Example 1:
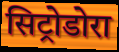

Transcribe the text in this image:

सिट्रोडोरा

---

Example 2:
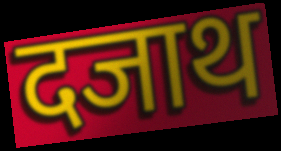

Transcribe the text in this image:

दजाथ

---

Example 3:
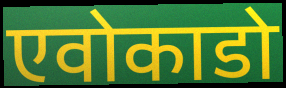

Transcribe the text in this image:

एवोकाडो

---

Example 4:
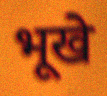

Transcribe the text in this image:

भूखे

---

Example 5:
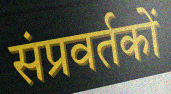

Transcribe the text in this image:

संप्रवर्तकों